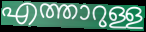
എത്താറുള്ള